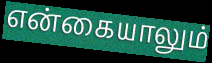
என்கையாலும்